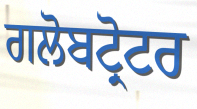
ਗਲੋਬਟ੍ਰੋਟਰ